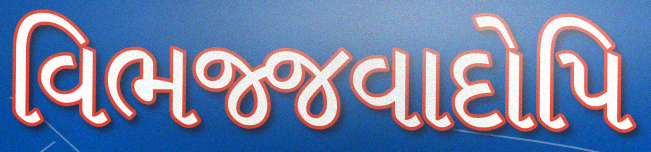
વિભજ્જવાદોપિ